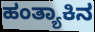
ಹಂತ್ಯಾಕಿನ